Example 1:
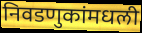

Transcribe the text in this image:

निवडणुकांमधली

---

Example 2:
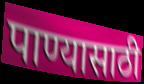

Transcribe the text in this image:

पाण्यासाठी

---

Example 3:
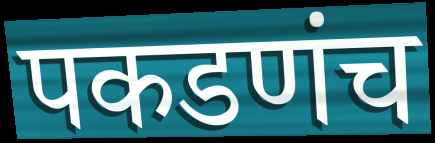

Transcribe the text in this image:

पकडणंच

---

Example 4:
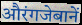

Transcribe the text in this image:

औरंगजेबानें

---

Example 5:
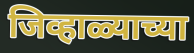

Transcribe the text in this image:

जिव्हाळ्याच्या